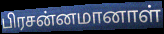
பிரசன்னமானாள்